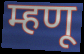
म्हणू